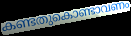
കണ്ടതുകൊണ്ടാവണം